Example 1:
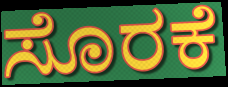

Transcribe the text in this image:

ಸೊರಕೆ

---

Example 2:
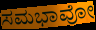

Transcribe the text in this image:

ಸಮಭಾವೋ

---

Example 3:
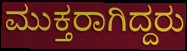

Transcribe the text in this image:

ಮುಕ್ತರಾಗಿದ್ದರು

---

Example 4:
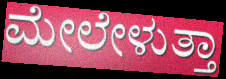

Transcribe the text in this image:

ಮೇಲೇಳುತ್ತಾ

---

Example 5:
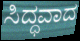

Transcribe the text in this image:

ಸಿದ್ಧವಾದ